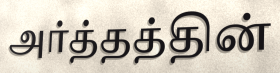
அர்த்தத்தின்